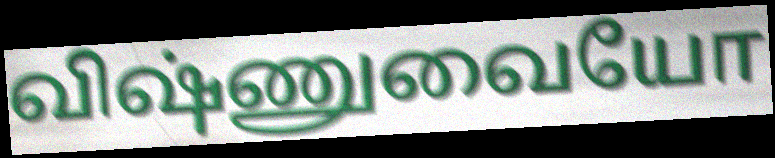
விஷ்ணுவையோ